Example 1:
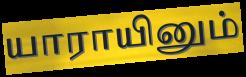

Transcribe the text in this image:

யாராயினும்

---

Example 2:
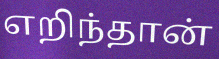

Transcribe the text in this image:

எறிந்தான்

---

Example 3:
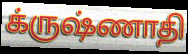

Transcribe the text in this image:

க்ருஷ்ணாதி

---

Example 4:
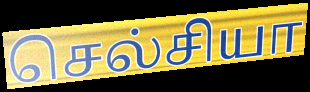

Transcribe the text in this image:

செல்சியா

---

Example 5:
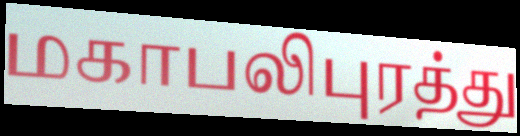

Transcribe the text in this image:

மகாபலிபுரத்து